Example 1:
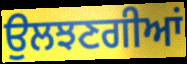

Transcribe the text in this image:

ਉਲਝਣਗੀਆਂ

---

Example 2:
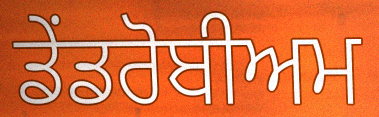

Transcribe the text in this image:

ਡੇਂਡਰੋਬੀਅਮ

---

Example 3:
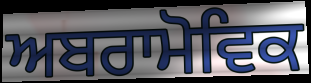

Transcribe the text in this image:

ਅਬਰਾਮੋਵਿਕ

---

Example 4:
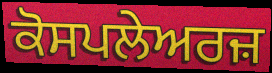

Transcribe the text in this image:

ਕੋਸਪਲੇਅਰਜ਼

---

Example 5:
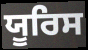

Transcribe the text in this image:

ਯੂਰਿਸ